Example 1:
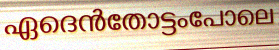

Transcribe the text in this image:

ഏദെൻതോട്ടംപോലെ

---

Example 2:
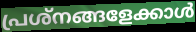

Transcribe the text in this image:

പ്രശ്നങ്ങളേക്കാൾ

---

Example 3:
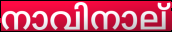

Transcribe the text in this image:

നാവിനാല്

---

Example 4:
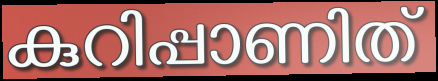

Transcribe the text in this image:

കുറിപ്പാണിത്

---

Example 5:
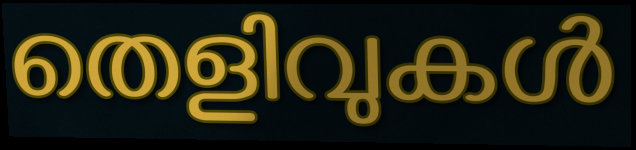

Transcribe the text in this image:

തെളിവുകൾ